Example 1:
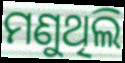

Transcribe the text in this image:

ମଣୁଥିଲି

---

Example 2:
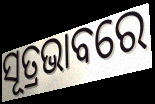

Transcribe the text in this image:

ସୂତ୍ରଭାବରେ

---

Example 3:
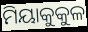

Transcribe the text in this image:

ମିୟାକୁକୁଳ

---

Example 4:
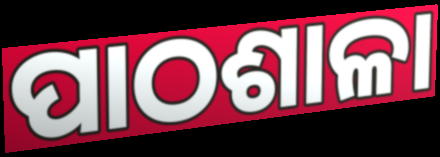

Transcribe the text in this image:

ପାଠଶାଳା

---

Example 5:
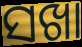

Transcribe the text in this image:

ସଖା